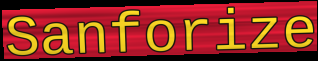
Sanforize